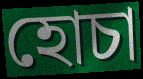
হোচা